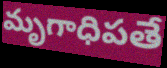
మృగాధిపతే